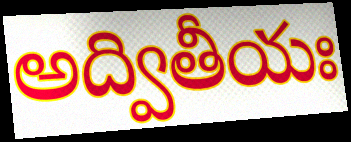
అద్వితీయః